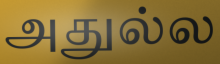
அதுல்ல